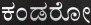
ಕಂಡರೋ